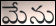
మేను